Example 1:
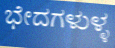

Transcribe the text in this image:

ಭೇದಗಳುಳ್ಳ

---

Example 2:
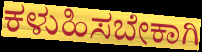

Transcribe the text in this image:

ಕಳುಹಿಸಬೇಕಾಗಿ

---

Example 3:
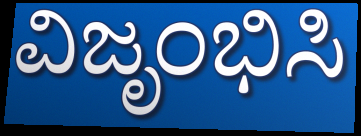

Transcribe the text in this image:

ವಿಜೃಂಭಿಸಿ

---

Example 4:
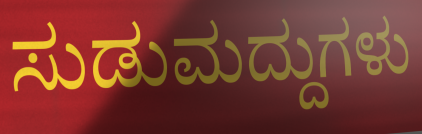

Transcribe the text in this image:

ಸುಡುಮದ್ದುಗಳು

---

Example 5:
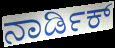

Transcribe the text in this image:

ನಾರ್ಡಿಕ್